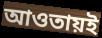
আওতায়ই